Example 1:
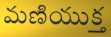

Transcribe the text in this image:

మణియుక్త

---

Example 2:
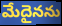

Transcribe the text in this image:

మేదైనను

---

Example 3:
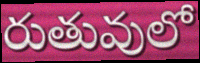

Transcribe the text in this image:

రుతువులో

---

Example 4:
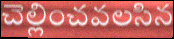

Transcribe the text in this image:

చెల్లించవలసిన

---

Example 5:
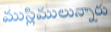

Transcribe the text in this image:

ముస్లిములున్నారు